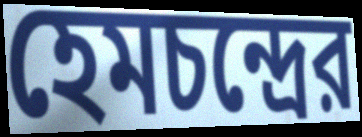
হেমচন্দ্রের